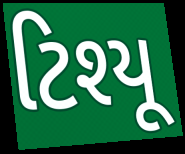
ટિશ્યૂ